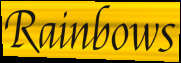
Rainbows